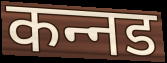
कन्नड